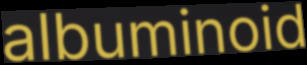
albuminoid